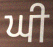
ਘੀ